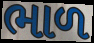
ભાળ